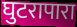
घुटरापारा